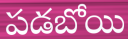
పడబోయి